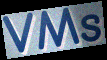
VMs